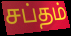
சப்தம்